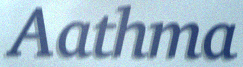
Aathma